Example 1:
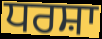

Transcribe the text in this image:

ਧਰਸ਼ਾ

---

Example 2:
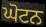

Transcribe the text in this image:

ਘੋਟਨ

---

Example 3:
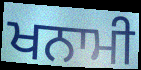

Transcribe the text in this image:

ਖਨਾਮੀ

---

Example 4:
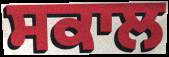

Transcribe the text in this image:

ਸਕਾਲ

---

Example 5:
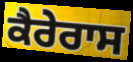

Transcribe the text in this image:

ਕੈਰੇਰਾਸ